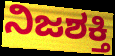
ನಿಜಶಕ್ತಿ